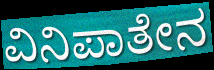
ವಿನಿಪಾತೇನ